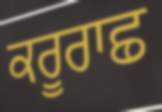
ਕਰੂਰਾਛ